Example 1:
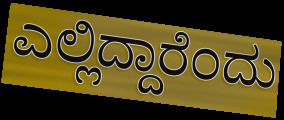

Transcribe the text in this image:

ಎಲ್ಲಿದ್ದಾರೆಂದು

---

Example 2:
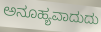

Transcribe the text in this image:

ಅನೂಹ್ಯವಾದುದು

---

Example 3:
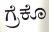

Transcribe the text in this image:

ಗ್ರೆಕೊ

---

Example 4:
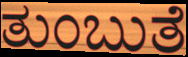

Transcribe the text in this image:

ತುಂಬುತೆ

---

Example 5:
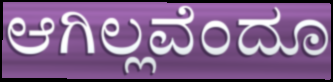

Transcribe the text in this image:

ಆಗಿಲ್ಲವೆಂದೂ